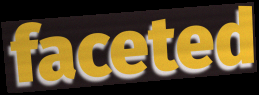
faceted